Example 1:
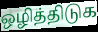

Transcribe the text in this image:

ஒழித்திடுக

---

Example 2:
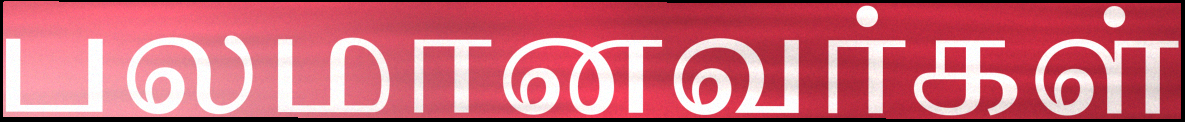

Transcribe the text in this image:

பலமானவர்கள்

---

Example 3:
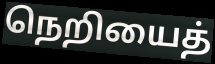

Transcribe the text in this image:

நெறியைத்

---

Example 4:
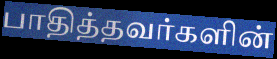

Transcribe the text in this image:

பாதித்தவர்களின்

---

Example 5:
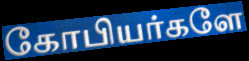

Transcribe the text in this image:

கோபியர்களே